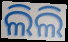
ଲିଲି